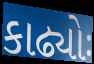
કાઢ્યોઃ